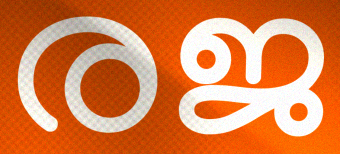
രജ